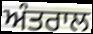
ਅੰਤਰਾਲ